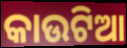
କାଉଟିଆ